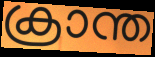
ക്രാന്ത